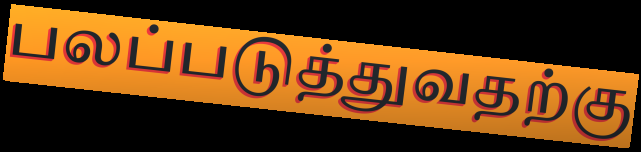
பலப்படுத்துவதற்கு